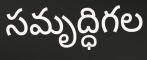
సమృద్ధిగల